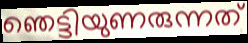
ഞെട്ടിയുണരുന്നത്